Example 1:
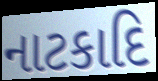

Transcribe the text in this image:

નાટકાદિ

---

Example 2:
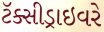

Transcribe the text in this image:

ટૅક્સીડ્રાઇવરે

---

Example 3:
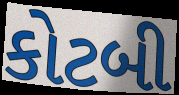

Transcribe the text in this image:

કોટબી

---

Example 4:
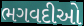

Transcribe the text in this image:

ભગવદીઓ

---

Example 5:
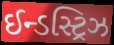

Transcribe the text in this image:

ઈન્ડસ્ટ્રિઝ